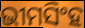
ଭୀମସିଂହ